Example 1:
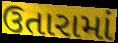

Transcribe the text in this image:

ઉતારામાં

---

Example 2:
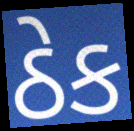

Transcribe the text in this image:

ઠેક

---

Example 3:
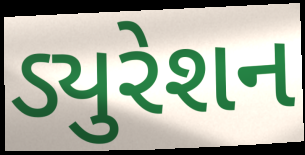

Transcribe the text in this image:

ડ્યુરેશન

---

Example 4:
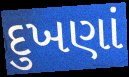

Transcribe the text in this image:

દુખણાં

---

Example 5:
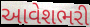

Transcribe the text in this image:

આવેશભરી